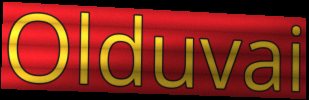
Olduvai